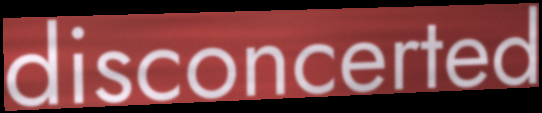
disconcerted